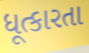
ધૂત્કારતા